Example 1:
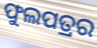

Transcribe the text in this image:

ଫୁଲପତ୍ରର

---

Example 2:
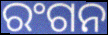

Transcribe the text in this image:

ରଂଗନ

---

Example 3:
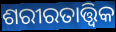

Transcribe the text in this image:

ଶରୀରତାତ୍ତ୍ଵିକ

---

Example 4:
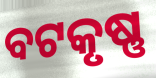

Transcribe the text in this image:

ବଟକୃଷ୍ଣ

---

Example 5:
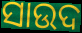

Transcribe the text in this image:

ସାଉଦ